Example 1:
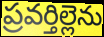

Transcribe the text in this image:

ప్రవర్తిల్లెను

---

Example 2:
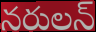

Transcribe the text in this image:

నరులన్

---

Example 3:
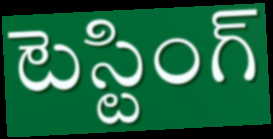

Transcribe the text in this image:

టెస్టింగ్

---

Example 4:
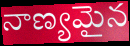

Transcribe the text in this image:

నాణ్యమైన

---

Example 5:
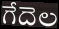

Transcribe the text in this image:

గేదెల